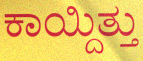
ಕಾಯ್ದಿತ್ತು